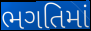
ભગતિમાં